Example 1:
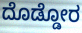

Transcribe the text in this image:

ದೊಡ್ಡೋರ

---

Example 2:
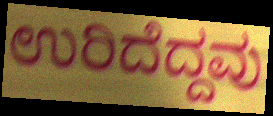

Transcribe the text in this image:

ಉರಿದೆದ್ದವು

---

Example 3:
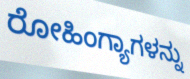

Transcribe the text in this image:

ರೋಹಿಂಗ್ಯಾಗಳನ್ನು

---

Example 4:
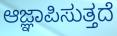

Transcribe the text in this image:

ಆಜ್ಞಾಪಿಸುತ್ತದೆ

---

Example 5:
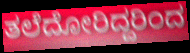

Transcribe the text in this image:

ತಲೆದೋರಿದ್ದರಿಂದ